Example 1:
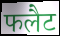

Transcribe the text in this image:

फलैट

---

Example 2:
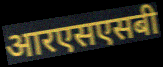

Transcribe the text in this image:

आरएसएसबी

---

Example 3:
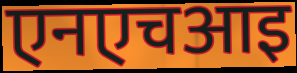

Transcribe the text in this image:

एनएचआइ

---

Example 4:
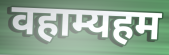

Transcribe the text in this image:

वहाम्यहम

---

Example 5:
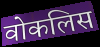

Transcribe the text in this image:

वोकलिस